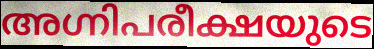
അഗ്നിപരീക്ഷയുടെ